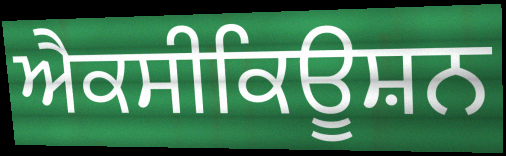
ਐਕਸੀਕਿਊਸ਼ਨ